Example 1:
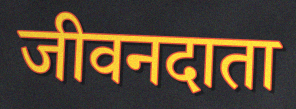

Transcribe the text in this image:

जीवनदाता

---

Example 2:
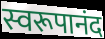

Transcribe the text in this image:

स्‍वरूपानंद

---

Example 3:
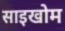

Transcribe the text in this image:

साइखोम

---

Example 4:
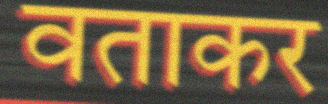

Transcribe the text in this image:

वताकर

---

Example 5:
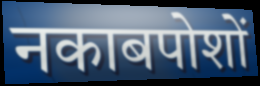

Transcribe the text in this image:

नकाबपोशों